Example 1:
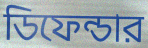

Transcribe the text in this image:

ডিফেন্ডার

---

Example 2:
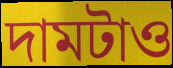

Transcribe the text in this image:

দামটাও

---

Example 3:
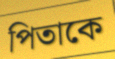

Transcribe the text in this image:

পিতাকে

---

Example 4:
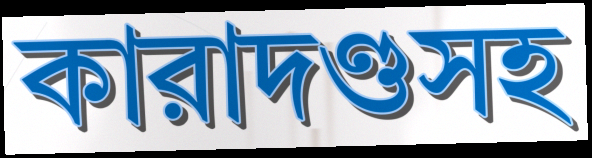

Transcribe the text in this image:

কারাদণ্ডসহ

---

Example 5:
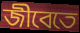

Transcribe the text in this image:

জীবেতে